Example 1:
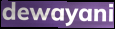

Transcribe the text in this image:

dewayani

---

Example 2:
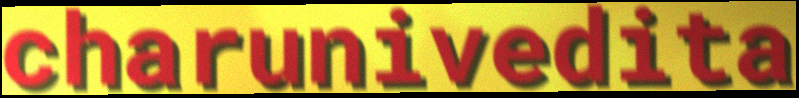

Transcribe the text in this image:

charunivedita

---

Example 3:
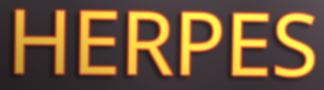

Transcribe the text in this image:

HERPES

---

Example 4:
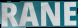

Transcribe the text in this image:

RANE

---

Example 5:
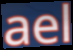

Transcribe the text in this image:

ael